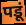
पडूं